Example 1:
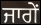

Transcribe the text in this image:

ਜਾਗੇਂ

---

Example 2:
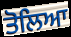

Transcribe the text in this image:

ਤੋਲਿਆ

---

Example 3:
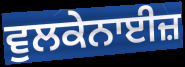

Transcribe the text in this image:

ਵੁਲਕੇਨਾਈਜ਼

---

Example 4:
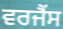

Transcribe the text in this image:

ਵਰਜੈਂਸ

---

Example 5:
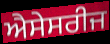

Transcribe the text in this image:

ਐਸੇਸਰੀਜ